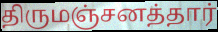
திருமஞ்சனத்தார்